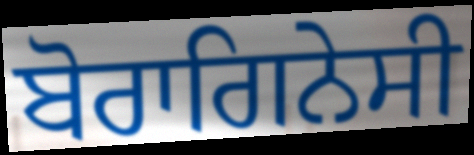
ਬੋਰਾਗਿਨੇਸੀ